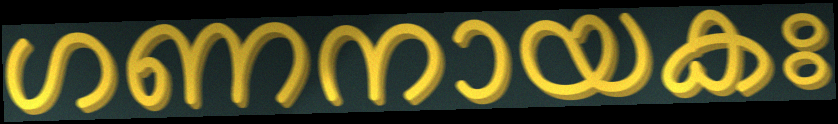
ഗണനായകഃ